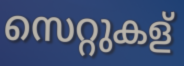
സെറ്റുകള്